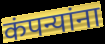
कंपन्यांना